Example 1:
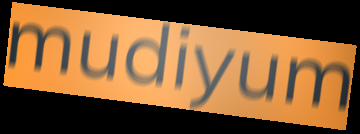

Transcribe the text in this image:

mudiyum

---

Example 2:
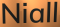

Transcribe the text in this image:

Niall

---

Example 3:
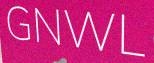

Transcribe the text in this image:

GNWL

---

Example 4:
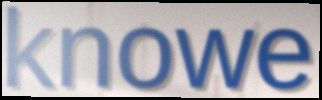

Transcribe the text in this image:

knowe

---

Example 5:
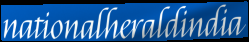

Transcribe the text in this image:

nationalheraldindia